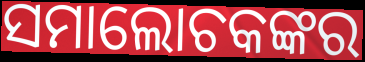
ସମାଲୋଚକଙ୍କର